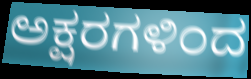
ಅಕ್ಷರಗಳಿಂದ